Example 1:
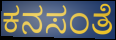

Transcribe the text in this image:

ಕನಸಂತೆ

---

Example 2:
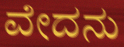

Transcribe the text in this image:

ವೇದನು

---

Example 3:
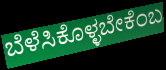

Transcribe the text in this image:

ಬೆಳೆಸಿಕೊಳ್ಳಬೇಕೆಂಬ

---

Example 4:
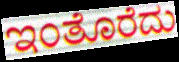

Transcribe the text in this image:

ಇಂತೊರೆದು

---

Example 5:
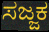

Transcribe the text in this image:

ಸಜ್ಜಕ